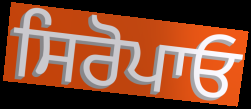
ਸਿਰੋਪਾਓ